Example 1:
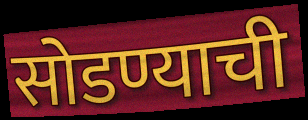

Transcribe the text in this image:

सोडण्याची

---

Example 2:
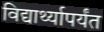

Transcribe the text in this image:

विद्यार्थ्यापर्यंत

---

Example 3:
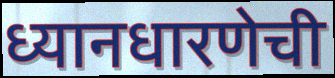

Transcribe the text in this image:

ध्यानधारणेची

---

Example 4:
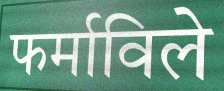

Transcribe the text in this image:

फर्माविले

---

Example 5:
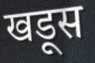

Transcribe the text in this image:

खडूस